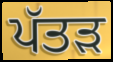
ਪੱਤਡ਼